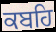
ਕਬਹਿ